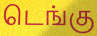
டெங்கு